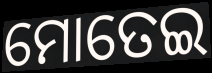
ମୋତେଇ